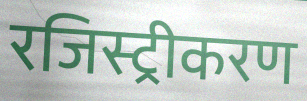
रजिस्ट्रीकरण